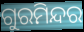
ଗୁରମିନ୍ଦର